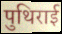
पुथिराई